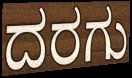
ದರಗು